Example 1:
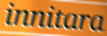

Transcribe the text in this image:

innitara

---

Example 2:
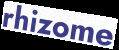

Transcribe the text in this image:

rhizome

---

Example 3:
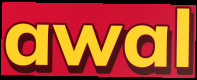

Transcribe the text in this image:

awal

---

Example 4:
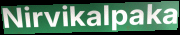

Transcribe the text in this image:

Nirvikalpaka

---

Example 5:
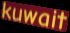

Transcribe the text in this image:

kuwait